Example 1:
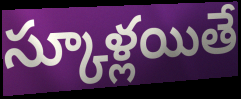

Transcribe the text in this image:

స్కూళ్లయితే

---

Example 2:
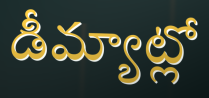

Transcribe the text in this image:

డీమ్యాట్లో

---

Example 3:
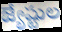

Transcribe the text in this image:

జ్యేష్టుల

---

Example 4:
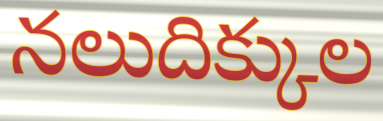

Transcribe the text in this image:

నలుదిక్కుల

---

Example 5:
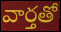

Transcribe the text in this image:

వార్తతో